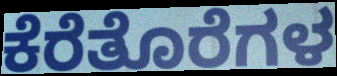
ಕೆರೆತೊರೆಗಳ